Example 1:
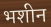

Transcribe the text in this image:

भशीन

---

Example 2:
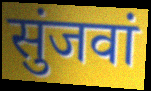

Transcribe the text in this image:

सुंजवां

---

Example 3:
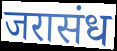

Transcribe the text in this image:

जरासंध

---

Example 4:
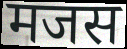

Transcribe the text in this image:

मजस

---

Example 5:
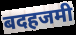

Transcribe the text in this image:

बदहजमी